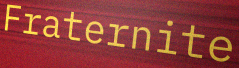
Fraternite